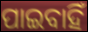
ପାଇବାହିଁ